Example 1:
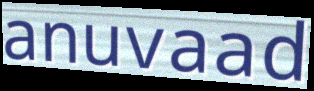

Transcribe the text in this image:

anuvaad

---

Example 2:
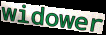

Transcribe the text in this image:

widower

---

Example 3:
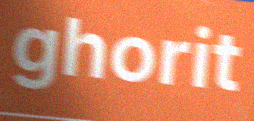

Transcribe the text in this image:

ghorit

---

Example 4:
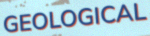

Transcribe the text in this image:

GEOLOGICAL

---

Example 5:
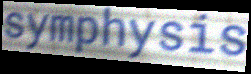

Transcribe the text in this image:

symphysis